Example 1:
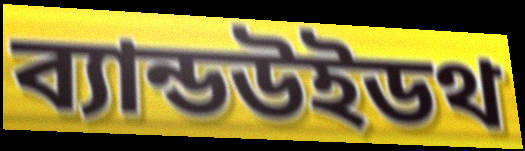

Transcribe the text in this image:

ব্যান্ডউইডথ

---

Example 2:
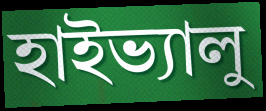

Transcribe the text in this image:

হাইভ্যালু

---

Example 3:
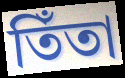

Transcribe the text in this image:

তিঁতা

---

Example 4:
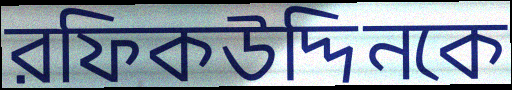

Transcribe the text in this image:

রফিকউদ্দিনকে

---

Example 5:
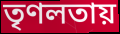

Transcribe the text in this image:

তৃণলতায়